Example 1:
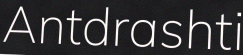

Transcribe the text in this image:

Antdrashti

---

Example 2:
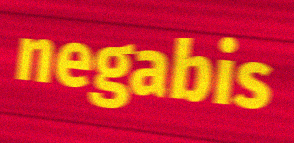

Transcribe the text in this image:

negabis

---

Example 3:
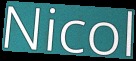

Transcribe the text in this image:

Nicol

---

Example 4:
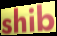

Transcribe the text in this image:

shib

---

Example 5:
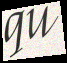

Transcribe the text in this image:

qu